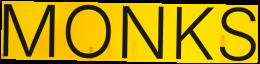
MONKS